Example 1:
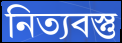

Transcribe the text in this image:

নিত্যবস্তু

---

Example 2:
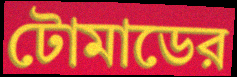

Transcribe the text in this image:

টোমাডের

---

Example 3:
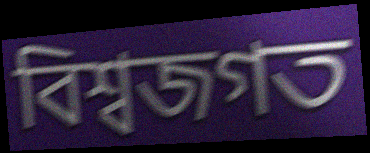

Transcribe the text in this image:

বিশ্বজগত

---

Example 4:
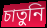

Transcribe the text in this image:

চাতুনি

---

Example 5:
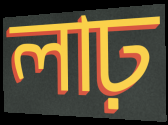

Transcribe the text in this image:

লাঢ়